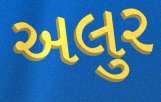
અલુર